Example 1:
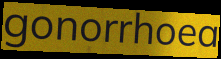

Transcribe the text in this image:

gonorrhoea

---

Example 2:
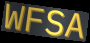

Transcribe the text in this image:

WFSA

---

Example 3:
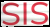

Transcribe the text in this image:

SIS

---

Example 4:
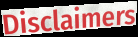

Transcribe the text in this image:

Disclaimers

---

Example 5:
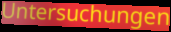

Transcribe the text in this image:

Untersuchungen